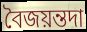
বৈজয়ন্তদা